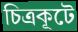
চিত্রকূটে